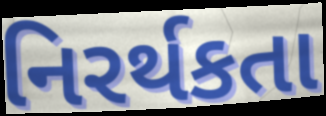
નિરર્થકતા